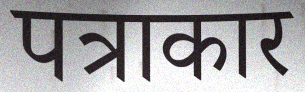
पत्राकार